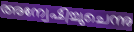
അന്വേഷിച്ചുചെന്നു